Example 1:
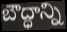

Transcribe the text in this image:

బౌద్ధాన్ని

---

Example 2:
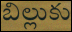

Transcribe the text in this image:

బిల్లుకు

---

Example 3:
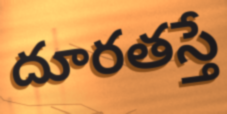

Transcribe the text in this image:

దూరతస్తే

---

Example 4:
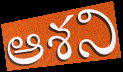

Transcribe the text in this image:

ఆశని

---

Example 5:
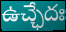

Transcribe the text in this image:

ఉచ్ఛేదః